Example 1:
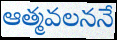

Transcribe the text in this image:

ఆత్మవలననే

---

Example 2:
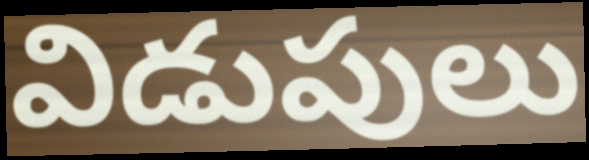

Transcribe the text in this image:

విడుపులు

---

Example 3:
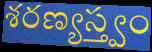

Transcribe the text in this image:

శరణ్యస్త్వం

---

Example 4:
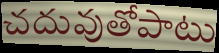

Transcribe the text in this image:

చదువుతోపాటు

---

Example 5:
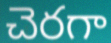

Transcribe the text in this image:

చెరగా